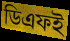
ডিএফই